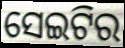
ସେଇଟିର